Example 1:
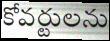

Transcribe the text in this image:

కోవర్టులను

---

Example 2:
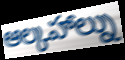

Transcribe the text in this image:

ఆల్కహాల్ను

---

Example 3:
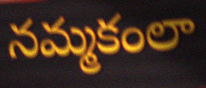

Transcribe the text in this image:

నమ్మకంలా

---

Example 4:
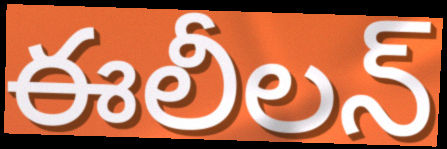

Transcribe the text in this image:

ఈలీలన్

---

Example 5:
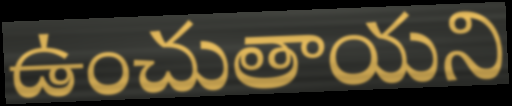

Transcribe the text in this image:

ఉంచుతాయని